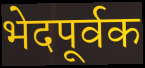
भेदपूर्वक